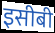
इसीबी